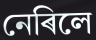
নেৰিলে